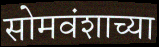
सोमवंशाच्या